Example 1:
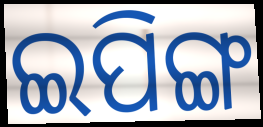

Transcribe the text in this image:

ଇପିଙ୍ଗ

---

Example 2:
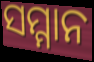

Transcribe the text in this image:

ସମ୍ମାନ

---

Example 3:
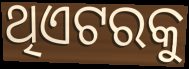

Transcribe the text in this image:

ଥିଏଟରକୁ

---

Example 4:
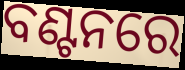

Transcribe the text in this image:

ବଣ୍ଟନରେ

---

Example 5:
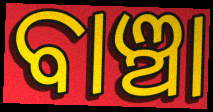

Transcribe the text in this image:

ବାଞ୍ଚା